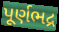
પૂર્ણભદ્ર